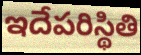
ఇదేపరిస్థితి